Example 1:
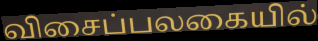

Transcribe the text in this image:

விசைப்பலகையில்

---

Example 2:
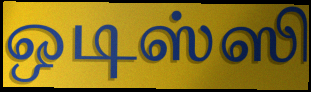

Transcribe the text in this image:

ஒடிஸ்ஸி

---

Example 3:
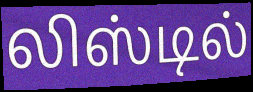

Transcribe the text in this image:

லிஸ்டில்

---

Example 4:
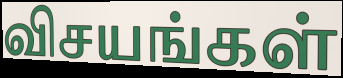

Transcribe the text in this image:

விசயங்கள்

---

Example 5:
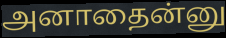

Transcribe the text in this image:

அனாதைன்னு